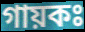
গায়কঃ